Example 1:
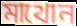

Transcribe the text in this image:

মাথোন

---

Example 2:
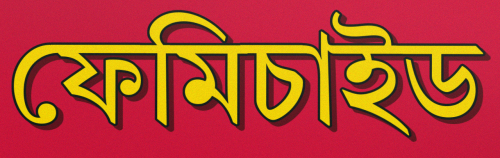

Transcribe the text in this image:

ফেমিচাইড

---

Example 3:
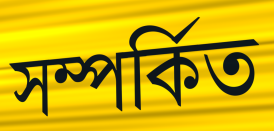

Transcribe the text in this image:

সম্পৰ্কিত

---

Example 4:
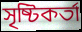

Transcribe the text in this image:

সৃষ্টিকৰ্তা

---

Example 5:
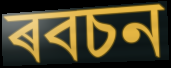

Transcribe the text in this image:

ৰবচন